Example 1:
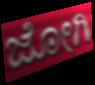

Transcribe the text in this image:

ಜೋಗಿ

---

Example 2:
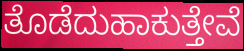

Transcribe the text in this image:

ತೊಡೆದುಹಾಕುತ್ತೇವೆ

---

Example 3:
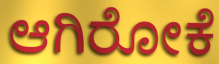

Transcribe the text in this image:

ಆಗಿರೋಕೆ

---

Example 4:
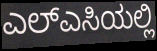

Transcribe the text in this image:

ಎಲ್ಎಸಿಯಲ್ಲಿ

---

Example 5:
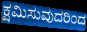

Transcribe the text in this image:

ಕ್ಷಮಿಸುವುದರಿಂದ